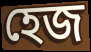
হেজ